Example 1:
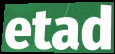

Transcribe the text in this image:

etad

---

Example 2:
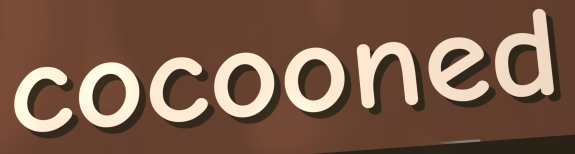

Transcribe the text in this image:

cocooned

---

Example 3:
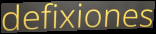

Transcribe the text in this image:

defixiones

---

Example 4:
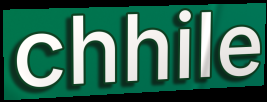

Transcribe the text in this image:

chhile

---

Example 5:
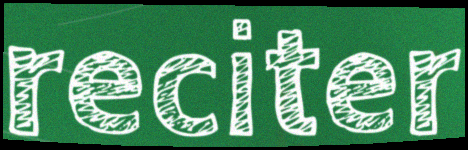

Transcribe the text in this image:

reciter